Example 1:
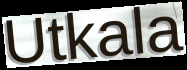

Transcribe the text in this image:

Utkala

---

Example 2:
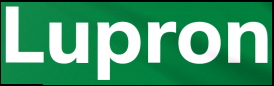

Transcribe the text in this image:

Lupron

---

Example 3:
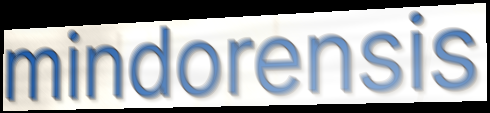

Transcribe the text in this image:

mindorensis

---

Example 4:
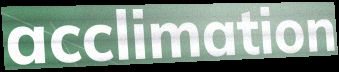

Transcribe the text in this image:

acclimation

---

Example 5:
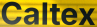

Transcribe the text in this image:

Caltex